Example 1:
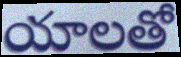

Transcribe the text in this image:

యాలతో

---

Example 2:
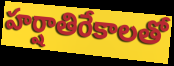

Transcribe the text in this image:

హర్షాతిరేకాలతో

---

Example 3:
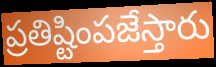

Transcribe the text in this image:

ప్రతిష్టింపజేస్తారు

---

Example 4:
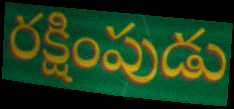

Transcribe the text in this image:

రక్షింపుడు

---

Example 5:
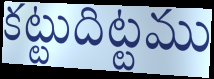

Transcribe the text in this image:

కట్టుదిట్టము